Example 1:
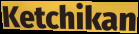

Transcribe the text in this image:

Ketchikan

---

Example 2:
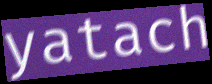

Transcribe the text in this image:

yatach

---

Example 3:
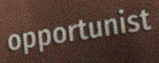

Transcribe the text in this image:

opportunist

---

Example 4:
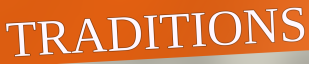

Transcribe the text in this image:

TRADITIONS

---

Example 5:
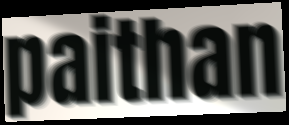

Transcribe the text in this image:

paithan